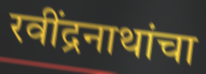
रवींद्रनाथांचा